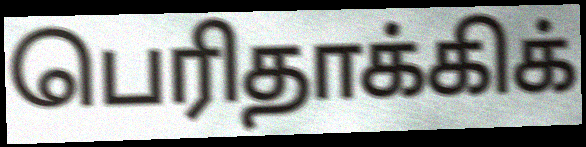
பெரிதாக்கிக்